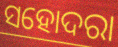
ସହୋଦରା